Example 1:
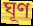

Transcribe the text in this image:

ঘূণ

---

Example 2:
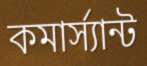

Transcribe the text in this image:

কমার্স্যান্ট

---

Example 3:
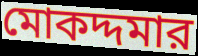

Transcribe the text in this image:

মোকদ্দমার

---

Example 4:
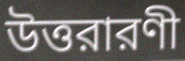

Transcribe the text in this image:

উত্তরারণী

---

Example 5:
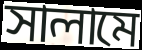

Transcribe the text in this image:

সালামে